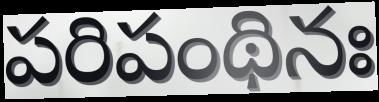
పరిపంథినః